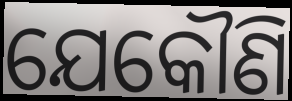
ଯେକୌଣି